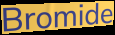
Bromide